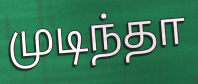
முடிந்தா